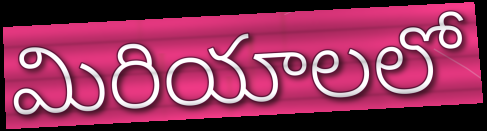
మిరియాలలో